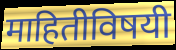
माहितीविषयी